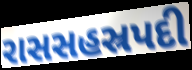
રાસસહસ્રપદી